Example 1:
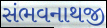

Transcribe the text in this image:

સંભવનાથજી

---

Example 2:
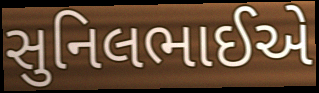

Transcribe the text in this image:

સુનિલભાઈએ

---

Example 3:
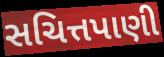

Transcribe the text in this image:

સચિત્તપાણી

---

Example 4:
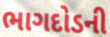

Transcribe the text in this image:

ભાગદોડની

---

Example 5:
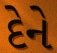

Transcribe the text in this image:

દેને